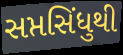
સપ્તસિંધુથી